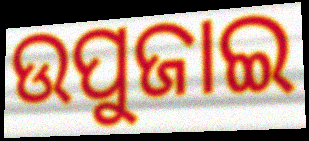
ଉପୁଜାଇ